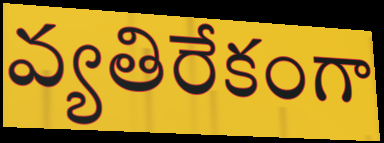
వ్యతిరేకంగా